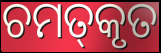
ଚମତ୍‌କୃତ